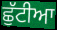
ਛੁੱਟੀਆ